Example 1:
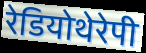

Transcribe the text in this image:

रेडियोथेरेपी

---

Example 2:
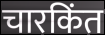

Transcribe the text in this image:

चारकिंत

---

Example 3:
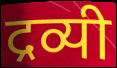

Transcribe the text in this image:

द्रव्यी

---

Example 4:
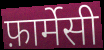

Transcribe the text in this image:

फ़ार्मेसी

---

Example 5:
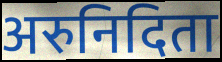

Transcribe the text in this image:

अरुनिदिता